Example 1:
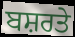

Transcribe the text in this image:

ਬਸ਼ਰਤੇ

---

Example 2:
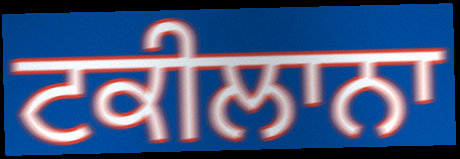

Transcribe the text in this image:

ਟਕੀਲਾਨਾ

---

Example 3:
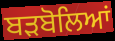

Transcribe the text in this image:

ਬੜਬੋਲਿਆਂ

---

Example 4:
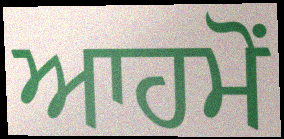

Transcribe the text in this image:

ਆਹਮੋਂ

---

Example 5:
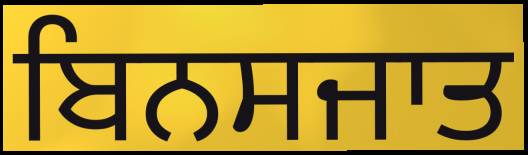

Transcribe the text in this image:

ਬਿਨਸਜਾਤ